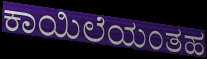
ಕಾಯಿಲೆಯಂತಹ